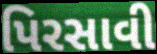
પિરસાવી